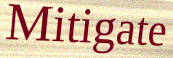
Mitigate